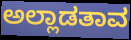
ಅಲ್ಲಾಡತಾವ